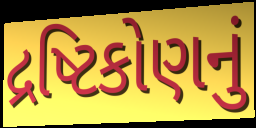
દ્રષ્ટિકોણનું